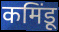
कमिंडू